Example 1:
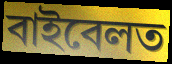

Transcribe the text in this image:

বাইবেলত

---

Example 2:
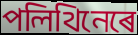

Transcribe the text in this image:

পলিথিনেৰে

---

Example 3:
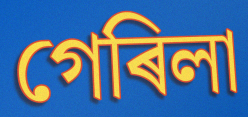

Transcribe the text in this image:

গেৰিলা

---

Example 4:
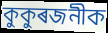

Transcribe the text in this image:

কুকুৰজনীক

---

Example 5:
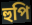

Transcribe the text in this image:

হুপি